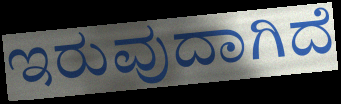
ಇರುವುದಾಗಿದೆ